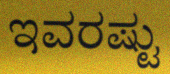
ಇವರಷ್ಟು